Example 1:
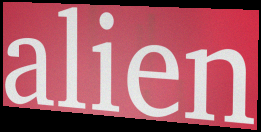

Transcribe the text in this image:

alien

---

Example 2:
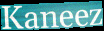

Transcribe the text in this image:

Kaneez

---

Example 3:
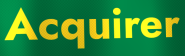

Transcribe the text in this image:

Acquirer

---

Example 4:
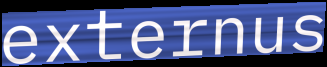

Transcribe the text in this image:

externus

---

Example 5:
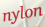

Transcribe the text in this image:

nylon